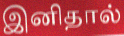
இனிதால்